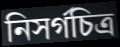
নিসর্গচিত্র